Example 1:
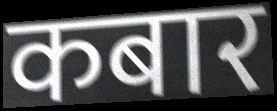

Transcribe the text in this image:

कबार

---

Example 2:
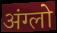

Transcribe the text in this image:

अंग्लो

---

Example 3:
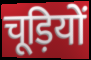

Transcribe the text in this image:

चूड़ियों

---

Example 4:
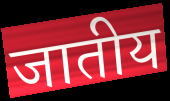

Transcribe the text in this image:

जातीय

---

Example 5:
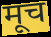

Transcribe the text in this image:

मूच